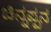
ಚಿನ್ನಪ್ಪನ